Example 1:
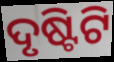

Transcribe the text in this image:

ଦୃଷ୍ଟିଟି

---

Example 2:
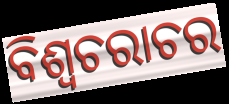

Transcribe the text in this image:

ବିଶ୍ଵଚରାଚର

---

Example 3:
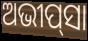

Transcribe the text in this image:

ଅଭୀପ୍‌ସା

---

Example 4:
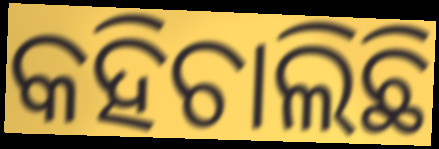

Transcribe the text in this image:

କହିଚାଲିଛି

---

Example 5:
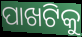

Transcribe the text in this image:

ପାଖଟିକୁ